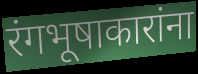
रंगभूषाकारांना